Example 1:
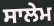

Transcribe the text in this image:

ਸਾਲੇਮ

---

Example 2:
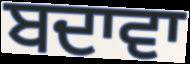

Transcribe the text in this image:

ਬਦਾਵਾ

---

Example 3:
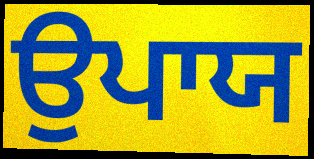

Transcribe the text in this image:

ਉਪਾਯ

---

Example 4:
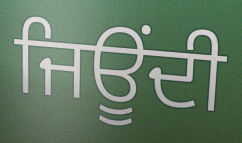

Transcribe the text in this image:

ਜਿਊਂਦੀ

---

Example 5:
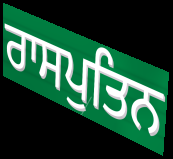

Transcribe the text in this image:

ਰਾਸਪੁਤਿਨ